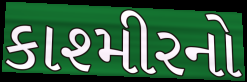
કાશ્મીરનો